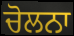
ਚੋਲਨਾ